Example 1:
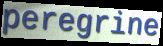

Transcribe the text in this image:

peregrine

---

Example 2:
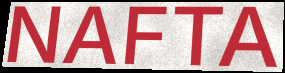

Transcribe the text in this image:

NAFTA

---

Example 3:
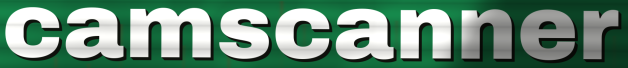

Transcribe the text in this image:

camscanner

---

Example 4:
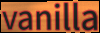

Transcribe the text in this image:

vanilla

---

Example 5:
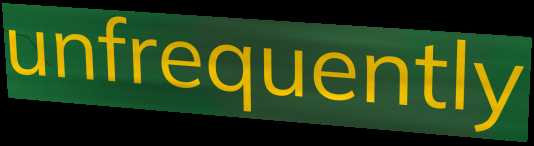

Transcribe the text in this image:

unfrequently